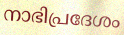
നാഭിപ്രദേശം